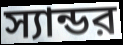
স্যান্ডর